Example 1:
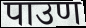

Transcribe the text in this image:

पाउण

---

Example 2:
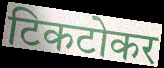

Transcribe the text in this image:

टिकटोकर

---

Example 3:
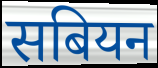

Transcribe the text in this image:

सबियन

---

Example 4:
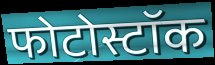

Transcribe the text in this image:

फोटोस्टॉक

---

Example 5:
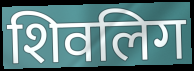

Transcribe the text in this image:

शिवलिग